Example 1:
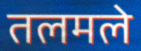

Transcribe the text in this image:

तलमले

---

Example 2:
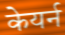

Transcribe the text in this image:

केयर्न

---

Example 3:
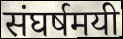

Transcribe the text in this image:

संघर्षमयी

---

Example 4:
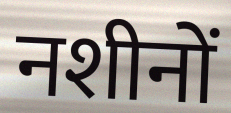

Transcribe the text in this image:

नशीनों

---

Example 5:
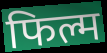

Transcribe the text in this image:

फिल्‍म